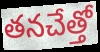
తనచేత్తో